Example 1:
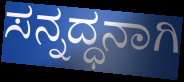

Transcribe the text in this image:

ಸನ್ನದ್ಧನಾಗಿ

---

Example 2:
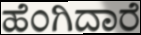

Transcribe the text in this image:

ಹೆಂಗಿದಾರೆ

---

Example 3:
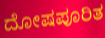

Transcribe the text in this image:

ದೋಷಪೂರಿತ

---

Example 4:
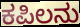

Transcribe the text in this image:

ಕಪಿಲನು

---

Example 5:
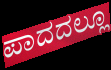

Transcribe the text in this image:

ಪಾದದಲ್ಲೂ